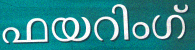
ഫയറിംഗ്